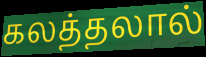
கலத்தலால்